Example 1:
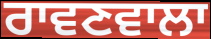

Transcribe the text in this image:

ਰਾਵਣਵਾਲਾ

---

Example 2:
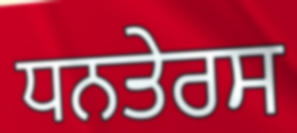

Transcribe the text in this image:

ਧਨਤੇਰਸ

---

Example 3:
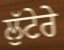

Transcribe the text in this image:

ਲੁੱਟੇਰੇ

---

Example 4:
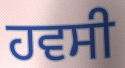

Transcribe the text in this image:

ਹਵਸੀ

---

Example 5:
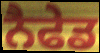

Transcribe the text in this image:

ਨੈਫੇਡ